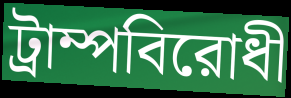
ট্রাম্পবিরোধী